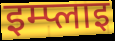
इम्प्लाइ